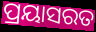
ପ୍ରୟାସରତ